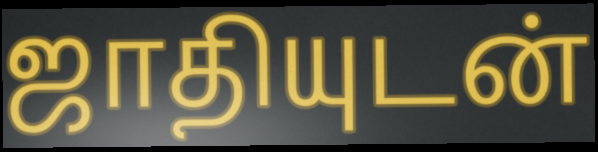
ஜாதியுடன்